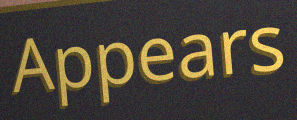
Appears